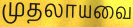
முதலாயவை